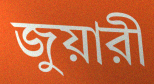
জুয়ারী